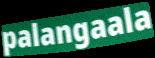
palangaala